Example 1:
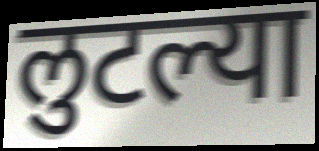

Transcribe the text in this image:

लुटल्या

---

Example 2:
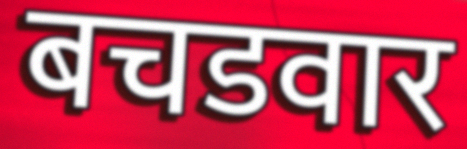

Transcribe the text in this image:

बचडवार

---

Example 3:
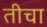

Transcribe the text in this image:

तीचा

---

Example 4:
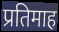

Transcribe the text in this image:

प्रतिमाह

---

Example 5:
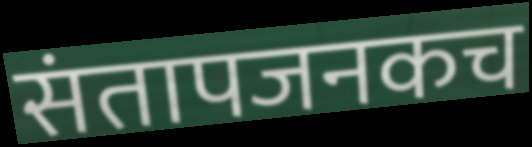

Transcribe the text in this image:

संतापजनकच